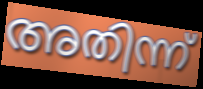
അതിന്ന്